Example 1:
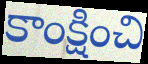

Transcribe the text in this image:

కాంక్షించి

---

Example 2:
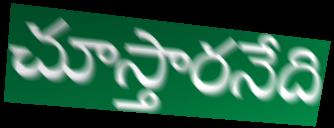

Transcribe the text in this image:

చూస్తారనేది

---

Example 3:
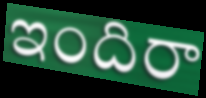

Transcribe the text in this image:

ఇందిరా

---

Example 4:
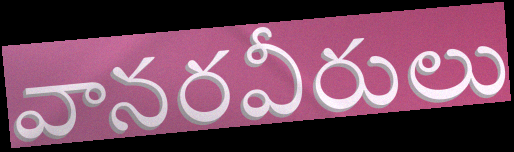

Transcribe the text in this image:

వానరవీరులు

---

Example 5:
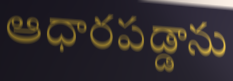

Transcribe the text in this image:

ఆధారపడ్డాను